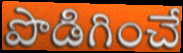
పొడిగించే